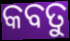
କବତୁ